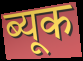
ब्यूक